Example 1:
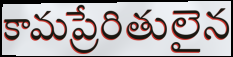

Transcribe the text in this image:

కామప్రేరితులైన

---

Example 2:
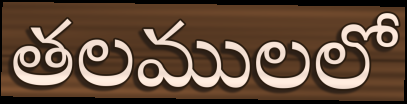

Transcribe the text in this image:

తలములలో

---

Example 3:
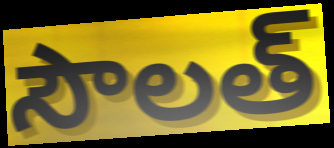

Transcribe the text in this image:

సౌలత్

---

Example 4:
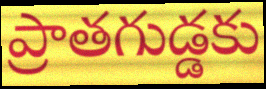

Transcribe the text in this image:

ప్రాతగుడ్డకు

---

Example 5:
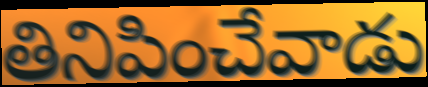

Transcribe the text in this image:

తినిపించేవాడు